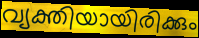
വ്യക്തിയായിരിക്കും